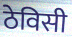
ठेविसी